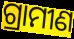
ଗ୍ରାମୀଣ